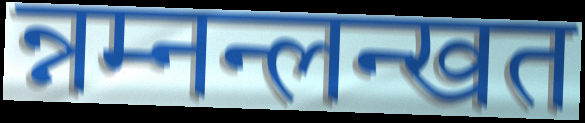
न्नम्नन्लन्खत